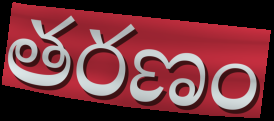
తరణం